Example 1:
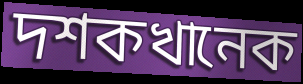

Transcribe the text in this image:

দশকখানেক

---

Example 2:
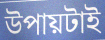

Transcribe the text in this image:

উপায়টাই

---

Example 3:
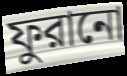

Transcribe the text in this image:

ফুরানো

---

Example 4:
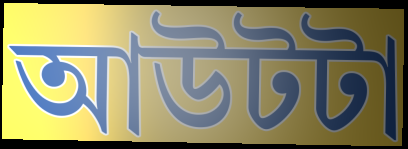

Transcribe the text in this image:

আউটটা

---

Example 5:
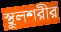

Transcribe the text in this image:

স্থূলশরীর